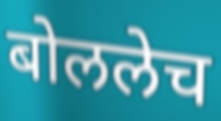
बोललेच